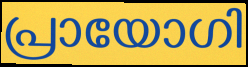
പ്രായോഗി